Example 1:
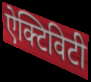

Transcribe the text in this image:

ऐक्टिविटी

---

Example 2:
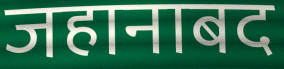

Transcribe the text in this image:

जहानाबद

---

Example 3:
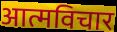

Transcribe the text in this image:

आत्मविचार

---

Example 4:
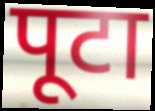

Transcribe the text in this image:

पूटा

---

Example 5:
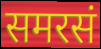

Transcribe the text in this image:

समरसं